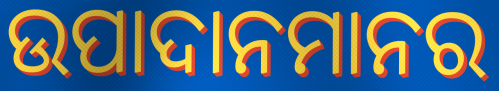
ଉପାଦାନମାନର